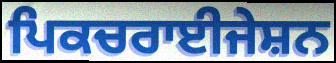
ਪਿਕਚਰਾਈਜੇਸ਼ਨ